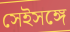
সেইসঙ্গে